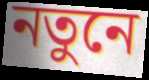
নতুনে